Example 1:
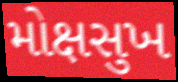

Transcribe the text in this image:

મોક્ષસુખ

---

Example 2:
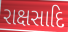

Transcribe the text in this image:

રાક્ષસાદિ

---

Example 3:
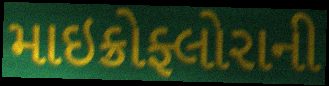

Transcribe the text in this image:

માઇક્રોફ્લોરાની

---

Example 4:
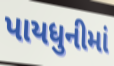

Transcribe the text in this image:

પાયધુનીમાં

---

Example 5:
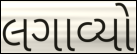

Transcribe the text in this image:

લગાવ્યો